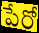
పేరో